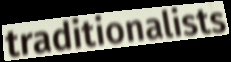
traditionalists